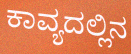
ಕಾವ್ಯದಲ್ಲಿನ